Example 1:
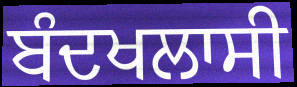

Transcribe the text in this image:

ਬੰਦਖਲਾਸੀ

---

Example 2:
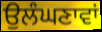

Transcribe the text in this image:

ਉਲੰਘਣਾਵਾਂ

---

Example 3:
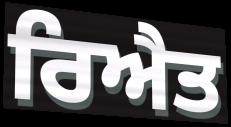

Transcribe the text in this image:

ਰਿਐਤ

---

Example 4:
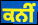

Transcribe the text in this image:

ਕਨੀਂ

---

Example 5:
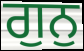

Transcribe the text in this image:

ਗੁਨੁ